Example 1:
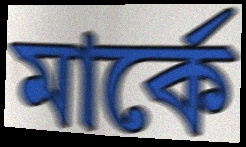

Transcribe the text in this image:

মাৰ্কে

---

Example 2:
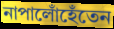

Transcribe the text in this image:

নাপালোঁহেঁতেন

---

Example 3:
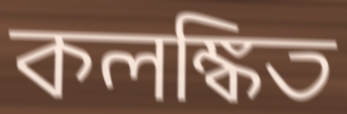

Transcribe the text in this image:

কলঙ্কিত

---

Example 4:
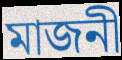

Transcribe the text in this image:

মাজনী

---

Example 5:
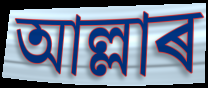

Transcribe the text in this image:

আল্লাৰ